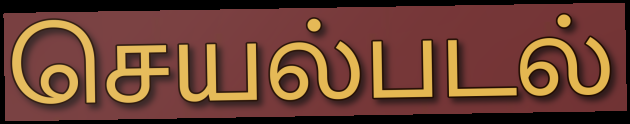
செயல்படல்